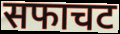
सफाचट